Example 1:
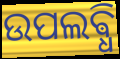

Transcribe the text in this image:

ଉପଲଵ୍ଧି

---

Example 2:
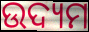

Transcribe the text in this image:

ଉଦ୍ୟମ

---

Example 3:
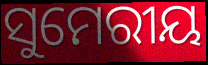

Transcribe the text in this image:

ସୁମେରୀୟ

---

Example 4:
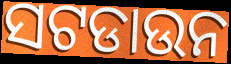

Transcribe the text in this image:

ସଟଡାଉନ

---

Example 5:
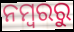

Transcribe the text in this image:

ନମ୍ବରରୁ